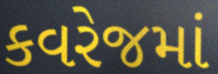
કવરેજમાં